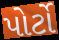
પોર્ટો